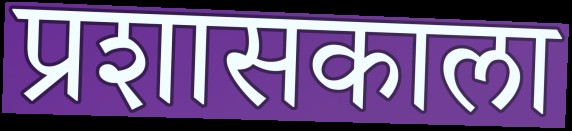
प्रशासकाला